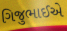
ગિજુભાઈએ